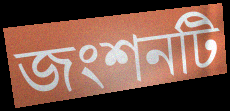
জংশনটি